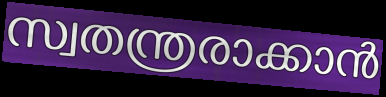
സ്വതന്ത്രരാക്കാൻ